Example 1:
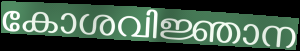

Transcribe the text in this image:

കോശവിജ്ഞാന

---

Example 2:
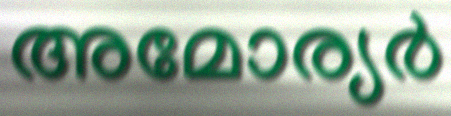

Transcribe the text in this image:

അമോര്യർ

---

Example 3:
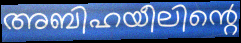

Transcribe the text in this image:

അബിഹയീലിന്റെ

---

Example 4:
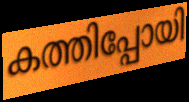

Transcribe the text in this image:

കത്തിപ്പോയി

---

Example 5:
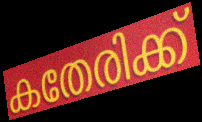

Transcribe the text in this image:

കതേരിക്ക്